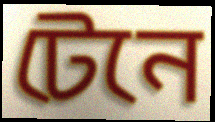
টেনে